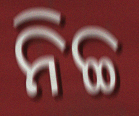
ନିଚ୍ଚ